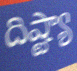
దిష్ట్యా